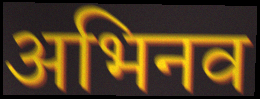
अभिनव